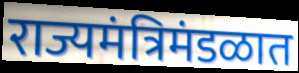
राज्यमंत्रिमंडळात